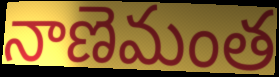
నాణెమంత